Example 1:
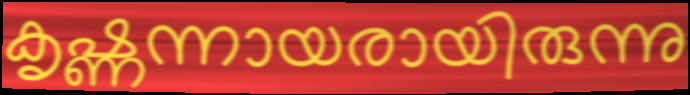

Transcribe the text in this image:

കൃഷ്ണന്നായരായിരുന്നു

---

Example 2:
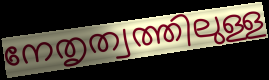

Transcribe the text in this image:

നേതൃത്വത്തിലുള്ള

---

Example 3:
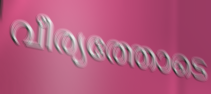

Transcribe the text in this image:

വീര്യത്തോടെ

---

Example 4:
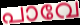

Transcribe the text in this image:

പാവേ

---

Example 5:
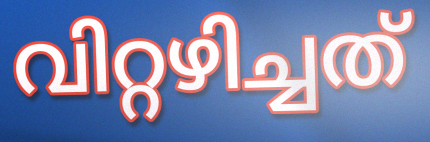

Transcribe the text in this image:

വിറ്റഴിച്ചത്